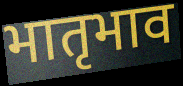
भातृभाव